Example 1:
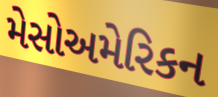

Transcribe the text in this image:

મેસોઅમેરિકન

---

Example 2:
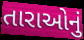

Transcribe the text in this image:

તારાઓનું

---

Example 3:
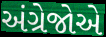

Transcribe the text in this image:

અંગ્રેજોએ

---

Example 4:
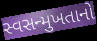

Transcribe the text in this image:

સ્વસન્મુખતાનો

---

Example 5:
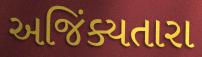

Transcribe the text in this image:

અજિંક્યતારા